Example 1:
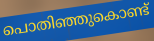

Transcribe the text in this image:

പൊതിഞ്ഞുകൊണ്ട്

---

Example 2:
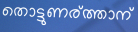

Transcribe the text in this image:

തൊട്ടുണര്ത്താന്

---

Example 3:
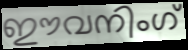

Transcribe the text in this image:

ഈവനിംഗ്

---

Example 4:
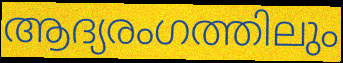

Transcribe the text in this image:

ആദ്യരംഗത്തിലും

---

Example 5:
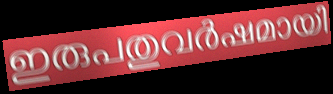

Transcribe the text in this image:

ഇരുപതുവർഷമായി